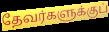
தேவர்களுக்குப்